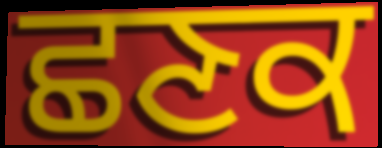
ਛਣਕ